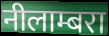
नीलाम्बरा